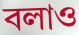
বলাও